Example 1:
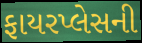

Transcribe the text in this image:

ફાયરપ્લેસની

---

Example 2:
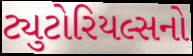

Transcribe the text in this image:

ટ્યુટોરિયલ્સનો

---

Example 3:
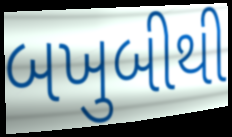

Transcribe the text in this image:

બખુબીથી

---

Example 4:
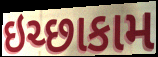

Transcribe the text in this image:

ઇચ્છાકામ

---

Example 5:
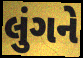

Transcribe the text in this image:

લુંગને